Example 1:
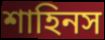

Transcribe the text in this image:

শাহিনস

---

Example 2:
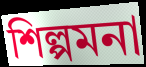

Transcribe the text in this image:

শিল্পমনা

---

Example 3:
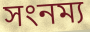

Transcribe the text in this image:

সংনম্য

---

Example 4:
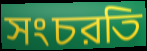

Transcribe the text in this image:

সংচরতি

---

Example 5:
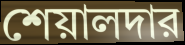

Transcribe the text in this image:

শেয়ালদার